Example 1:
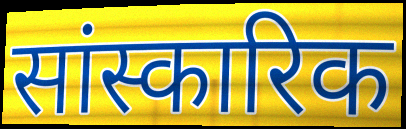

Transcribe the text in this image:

सांस्कारिक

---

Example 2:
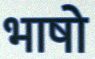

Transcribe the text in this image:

भाषो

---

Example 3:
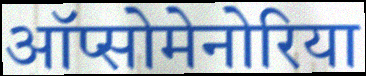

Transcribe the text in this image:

ऑप्सोमेनोरिया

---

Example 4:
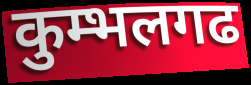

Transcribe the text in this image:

कुम्भलगढ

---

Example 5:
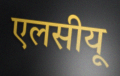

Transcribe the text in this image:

एलसीयू